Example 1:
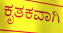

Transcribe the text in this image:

ಕೃತಕವಾಗಿ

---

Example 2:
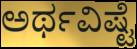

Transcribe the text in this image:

ಅರ್ಥವಿಷ್ಟೆ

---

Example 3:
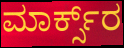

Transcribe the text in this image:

ಮಾರ್ಕ್ಸ್‌ರ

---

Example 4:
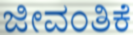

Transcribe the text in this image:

ಜೀವಂತಿಕೆ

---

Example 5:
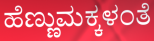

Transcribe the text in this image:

ಹೆಣ್ಣುಮಕ್ಕಳಂತೆ